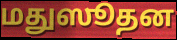
மதுஸூதன